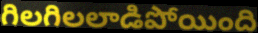
గిలగిలలాడిపోయింది